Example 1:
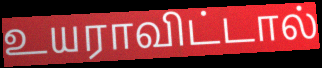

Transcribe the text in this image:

உயராவிட்டால்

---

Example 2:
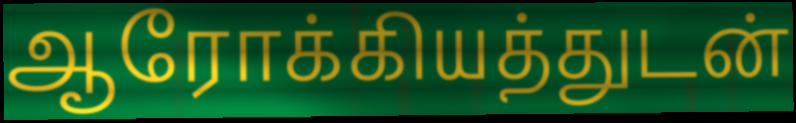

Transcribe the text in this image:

ஆரோக்கியத்துடன்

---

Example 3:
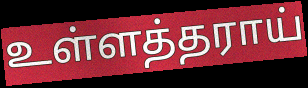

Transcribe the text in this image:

உள்ளத்தராய்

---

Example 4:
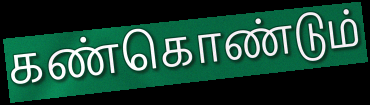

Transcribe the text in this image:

கண்கொண்டும்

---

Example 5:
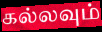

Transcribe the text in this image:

கல்லவும்